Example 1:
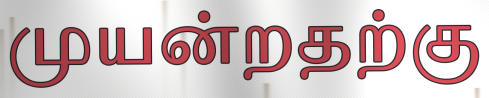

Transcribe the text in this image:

முயன்றதற்கு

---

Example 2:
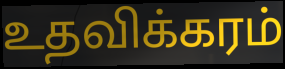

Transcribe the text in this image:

உதவிக்கரம்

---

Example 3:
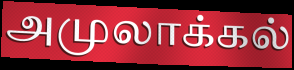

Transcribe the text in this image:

அமுலாக்கல்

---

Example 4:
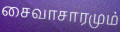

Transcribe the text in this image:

சைவாசாரமும்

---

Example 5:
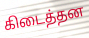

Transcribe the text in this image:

கிடைத்தன